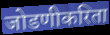
जोडणीकरिता